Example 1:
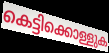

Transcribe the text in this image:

കെട്ടിക്കൊള്ളുക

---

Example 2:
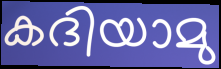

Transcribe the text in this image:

കദിയാമു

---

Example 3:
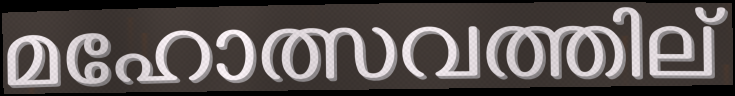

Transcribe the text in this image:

മഹോത്സവത്തില്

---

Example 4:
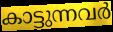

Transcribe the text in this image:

കാട്ടുന്നവർ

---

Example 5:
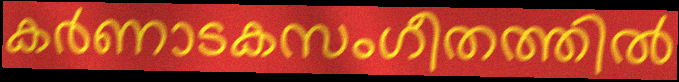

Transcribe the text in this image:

കർണാടകസംഗീതത്തിൽ